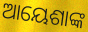
ଆୟେଶାଙ୍କ